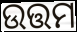
ଉତ୍ତମ